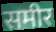
समीर